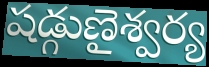
షడ్గుణైశ్వర్య